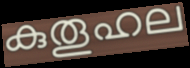
കുതൂഹല